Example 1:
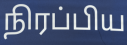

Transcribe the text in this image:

நிரப்பிய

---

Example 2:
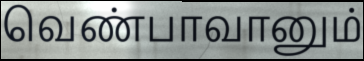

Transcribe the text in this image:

வெண்பாவானும்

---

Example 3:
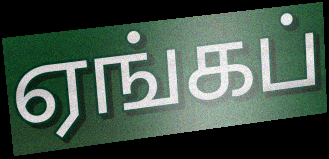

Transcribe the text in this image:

ஏங்கப்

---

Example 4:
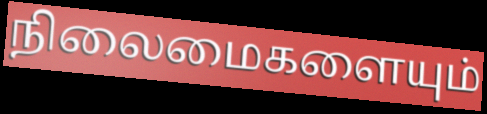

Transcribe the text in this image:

நிலைமைகளையும்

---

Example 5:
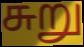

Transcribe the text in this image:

சுறு